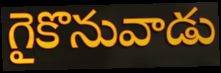
గైకొనువాడు